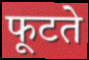
फूटते